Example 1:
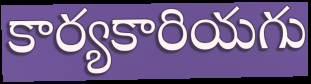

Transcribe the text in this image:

కార్యకారియగు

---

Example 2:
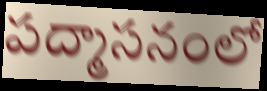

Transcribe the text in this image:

పద్మాసనంలో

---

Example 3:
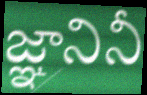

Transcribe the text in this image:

జ్ఞానినీ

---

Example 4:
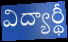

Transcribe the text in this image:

విద్యార్థీ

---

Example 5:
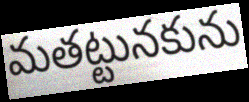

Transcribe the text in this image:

మతట్టునకును